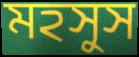
মহসুস